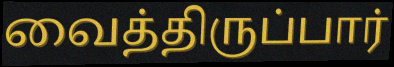
வைத்திருப்பார்